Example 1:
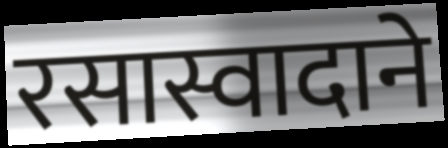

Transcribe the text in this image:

रसास्वादाने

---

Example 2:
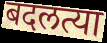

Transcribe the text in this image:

बदलत्या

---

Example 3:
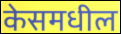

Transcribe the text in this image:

केसमधील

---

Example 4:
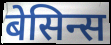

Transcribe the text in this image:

बेसिन्स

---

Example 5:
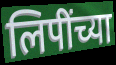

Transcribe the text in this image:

लिपींच्या